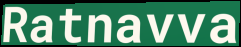
Ratnavva